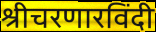
श्रीचरणारविंदी